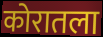
कोरातला